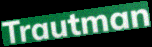
Trautman